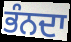
ਭੰਨਦਾ